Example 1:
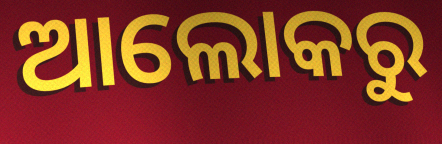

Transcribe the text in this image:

ଆଲୋକରୁ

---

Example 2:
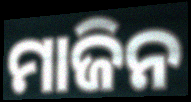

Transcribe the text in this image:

ମାଜିନ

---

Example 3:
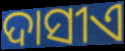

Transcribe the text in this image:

ଦାସୀଏ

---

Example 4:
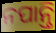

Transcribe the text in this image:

ନପାନ୍ତି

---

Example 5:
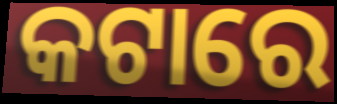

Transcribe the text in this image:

କଟାରେ